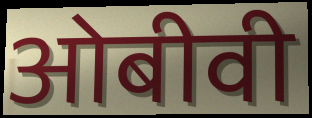
ओबीवी